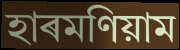
হাৰমণিয়াম